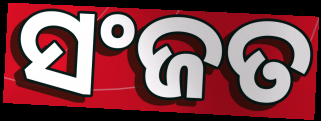
ସଂଜତ